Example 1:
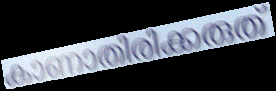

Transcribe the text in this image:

കാണാതിരിക്കരുത്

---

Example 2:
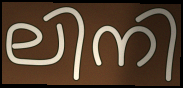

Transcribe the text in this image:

ലിനി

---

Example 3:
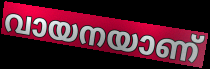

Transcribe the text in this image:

വായനയാണ്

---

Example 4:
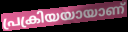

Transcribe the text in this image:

പ്രക്രിയയായാണ്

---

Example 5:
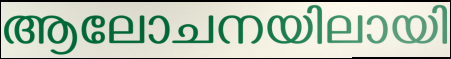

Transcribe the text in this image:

ആലോചനയിലായി